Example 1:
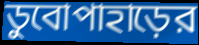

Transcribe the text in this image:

ডুবোপাহাড়ের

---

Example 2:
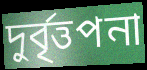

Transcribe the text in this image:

দুর্বৃত্তপনা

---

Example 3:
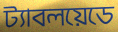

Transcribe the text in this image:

ট্যাবলয়েডে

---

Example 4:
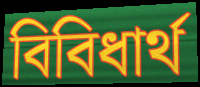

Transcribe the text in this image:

বিবিধার্থ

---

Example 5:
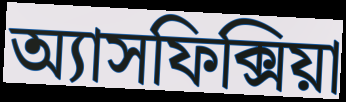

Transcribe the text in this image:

অ্যাসফিক্সিয়া